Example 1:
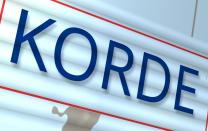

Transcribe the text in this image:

KORDE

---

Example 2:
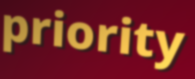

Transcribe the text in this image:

priority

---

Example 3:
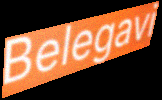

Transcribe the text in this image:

Belegavi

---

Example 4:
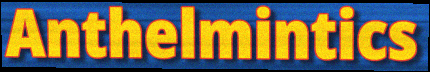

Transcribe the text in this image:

Anthelmintics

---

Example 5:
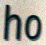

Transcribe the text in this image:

ho